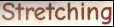
Stretching